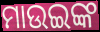
ମାଉଇଙ୍କ